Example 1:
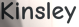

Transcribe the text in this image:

Kinsley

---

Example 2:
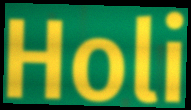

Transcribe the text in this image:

Holi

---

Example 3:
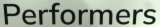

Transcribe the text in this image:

Performers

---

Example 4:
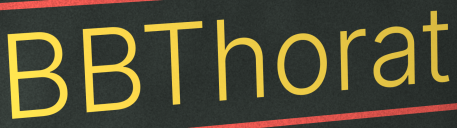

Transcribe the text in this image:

BBThorat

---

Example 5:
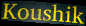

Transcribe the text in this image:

Koushik